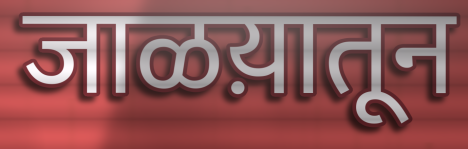
जाळय़ातून